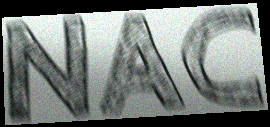
NAC